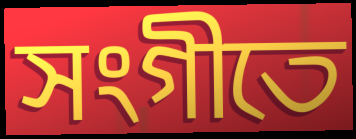
সংগীতে